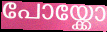
പോയ്ക്കോ